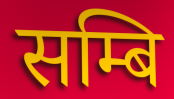
सम्बि